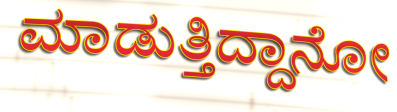
ಮಾಡುತ್ತಿದ್ದಾನೋ